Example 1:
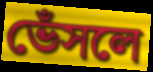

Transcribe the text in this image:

ভেঁসলে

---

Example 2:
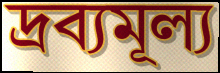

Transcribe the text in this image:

দ্রব্যমূল্য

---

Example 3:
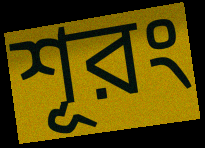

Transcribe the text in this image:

শূরং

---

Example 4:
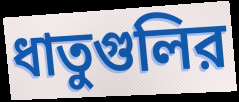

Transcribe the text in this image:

ধাতুগুলির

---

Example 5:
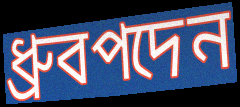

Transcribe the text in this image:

ধ্রুবপদেন